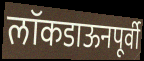
लॉकडाऊनपूर्वी